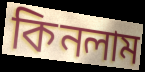
কিনলাম